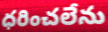
ధరించలేను